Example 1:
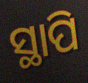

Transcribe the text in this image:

ସ୍ଥାପି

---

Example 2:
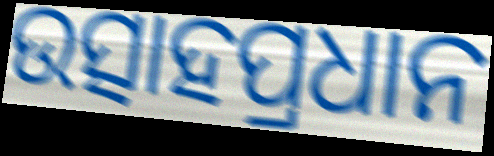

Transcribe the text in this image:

ଉତ୍ସାହପ୍ରଧାନ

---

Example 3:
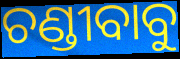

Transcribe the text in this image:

ଚଣ୍ଡୀବାବୁ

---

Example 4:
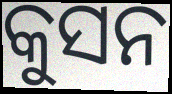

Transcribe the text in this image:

କୁସନ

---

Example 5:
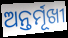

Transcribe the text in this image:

ଅନ୍ତର୍ମୂଖୀ